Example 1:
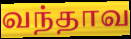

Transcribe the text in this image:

வந்தாவ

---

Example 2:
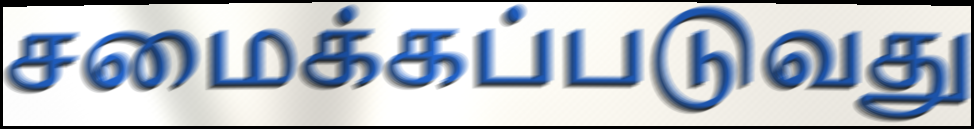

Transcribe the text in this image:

சமைக்கப்படுவது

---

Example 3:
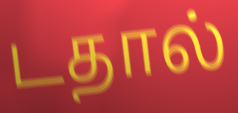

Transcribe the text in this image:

டதால்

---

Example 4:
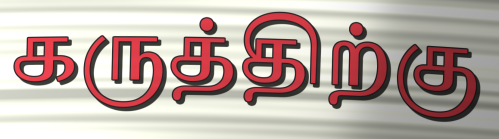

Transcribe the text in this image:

கருத்திற்கு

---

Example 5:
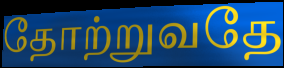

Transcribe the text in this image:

தோற்றுவதே